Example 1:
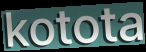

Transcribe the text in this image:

kotota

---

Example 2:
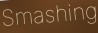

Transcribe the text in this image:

Smashing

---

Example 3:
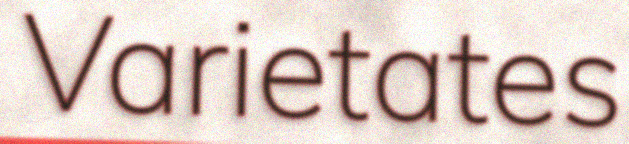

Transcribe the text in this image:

Varietates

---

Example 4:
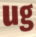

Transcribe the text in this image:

ug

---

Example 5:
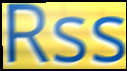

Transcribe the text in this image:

Rss